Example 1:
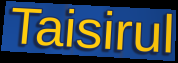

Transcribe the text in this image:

Taisirul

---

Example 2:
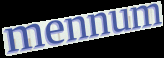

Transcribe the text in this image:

mennum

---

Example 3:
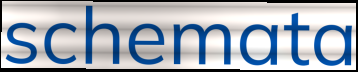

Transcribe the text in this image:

schemata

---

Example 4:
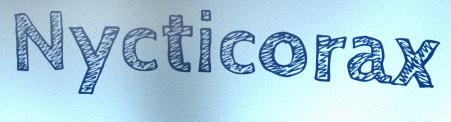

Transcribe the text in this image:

Nycticorax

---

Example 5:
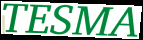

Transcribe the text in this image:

TESMA